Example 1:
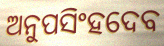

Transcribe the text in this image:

ଅନୁପସିଂହଦେବ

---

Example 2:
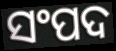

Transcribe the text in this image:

ସଂପଦ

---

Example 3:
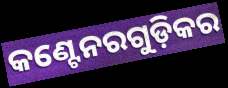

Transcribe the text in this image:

କଣ୍ଟେନରଗୁଡ଼ିକର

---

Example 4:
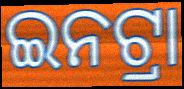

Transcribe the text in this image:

ଇନଟ୍ରା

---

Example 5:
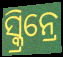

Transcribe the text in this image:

ସ୍କ୍ରିନ୍ରେ